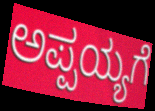
ಅಪ್ಪಯ್ಯಗೆ